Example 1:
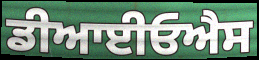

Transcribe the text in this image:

ਡੀਆਈਓਐਸ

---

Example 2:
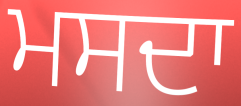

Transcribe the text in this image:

ਮਸਦਾ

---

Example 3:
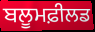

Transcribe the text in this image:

ਬਲੂਮਫ਼ੀਲਡ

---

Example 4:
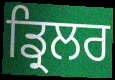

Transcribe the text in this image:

ਡ੍ਰਿਲਰ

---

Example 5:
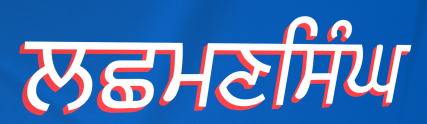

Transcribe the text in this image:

ਲਛਮਣਸਿੰਘ